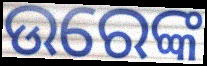
ଉରେଙ୍କ